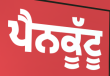
ਪੈਨਕੂੱਟੂ